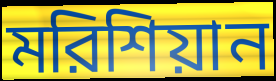
মরিশিয়ান